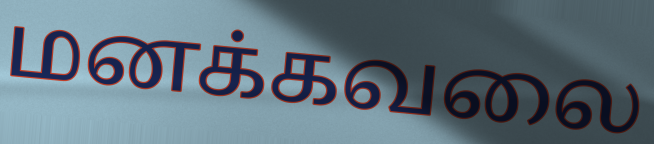
மனக்கவலை